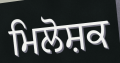
ਮਿਲੋਸ਼ਕ